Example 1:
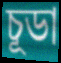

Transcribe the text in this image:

চূডা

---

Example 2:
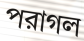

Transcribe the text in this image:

পরাগল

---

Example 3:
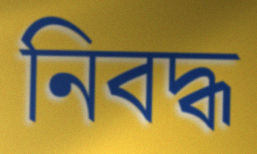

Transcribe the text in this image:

নিবদ্ধ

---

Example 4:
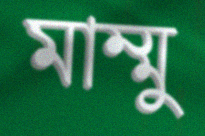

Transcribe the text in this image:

মাম্মু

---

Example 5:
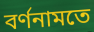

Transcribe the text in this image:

বর্ণনামতে